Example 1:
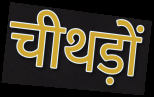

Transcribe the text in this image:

चीथड़ों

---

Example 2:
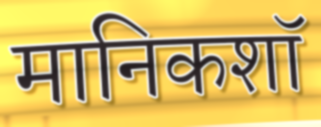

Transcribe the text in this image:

मानिकशॉ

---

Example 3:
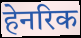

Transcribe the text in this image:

हेनरिक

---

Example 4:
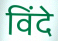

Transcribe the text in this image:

विंदे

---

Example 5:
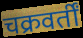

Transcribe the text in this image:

चक्रवर्तीं